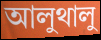
আলুথালু